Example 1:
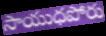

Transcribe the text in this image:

సాయుధపోరు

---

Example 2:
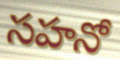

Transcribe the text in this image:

సహనో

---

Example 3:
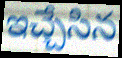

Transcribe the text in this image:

ఇచ్చేసిన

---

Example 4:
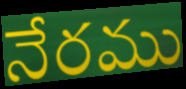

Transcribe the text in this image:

నేరము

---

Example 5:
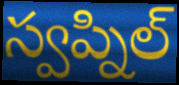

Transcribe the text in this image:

స్వప్నిల్